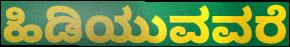
ಹಿಡಿಯುವವರೆ